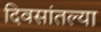
दिवसांतल्या